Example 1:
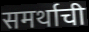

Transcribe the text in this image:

समर्थाची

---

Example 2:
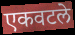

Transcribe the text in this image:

एकवटले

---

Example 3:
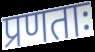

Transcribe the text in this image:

प्रणताः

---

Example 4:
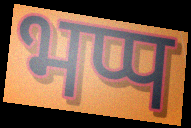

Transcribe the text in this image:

भप्प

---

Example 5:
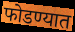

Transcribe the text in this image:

फोडण्यात